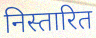
निस्तारित